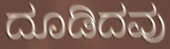
ದೂಡಿದವು